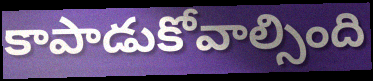
కాపాడుకోవాల్సింది